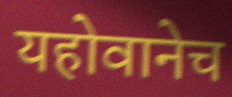
यहोवानेच